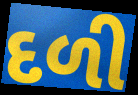
દળી